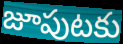
జూపుటకు